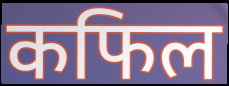
कफिल